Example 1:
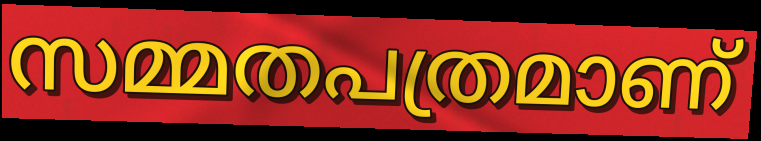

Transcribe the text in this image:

സമ്മതപത്രമാണ്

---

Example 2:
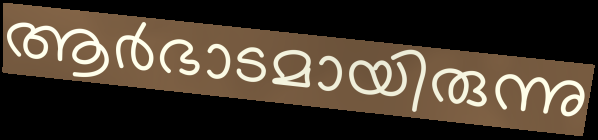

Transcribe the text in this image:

ആർഭാടമായിരുന്നു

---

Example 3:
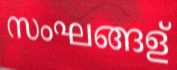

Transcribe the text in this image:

സംഘങ്ങള്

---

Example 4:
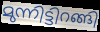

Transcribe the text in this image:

മുന്നിട്ടിറങ്ങി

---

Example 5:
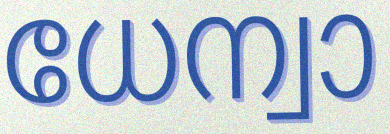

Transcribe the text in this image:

ധേന്വാ